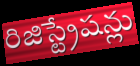
రిజిస్ట్రేషన్లు